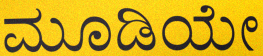
ಮೂಡಿಯೇ